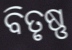
ବିତୃଷ୍ଣ